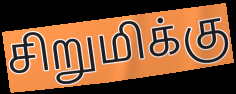
சிறுமிக்கு